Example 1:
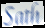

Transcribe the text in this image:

Sath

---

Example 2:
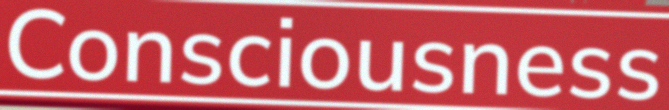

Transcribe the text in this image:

Consciousness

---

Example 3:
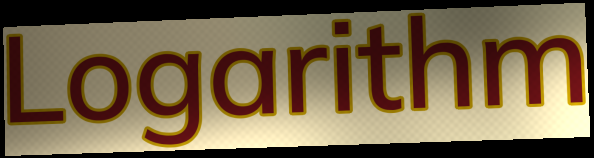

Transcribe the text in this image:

Logarithm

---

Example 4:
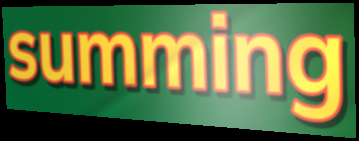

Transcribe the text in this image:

summing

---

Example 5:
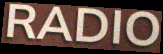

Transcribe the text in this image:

RADIO